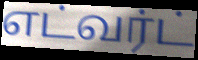
எட்வர்ட்